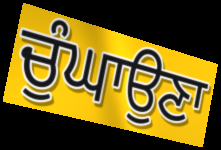
ਚੁੰਘਾਉਣਾ